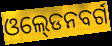
ଓଲ୍‍ଡେନବର୍ଗ